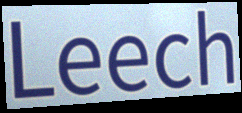
Leech